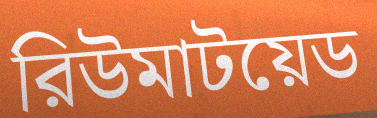
রিউমাটয়েড